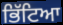
ਭਿੱਟਿਆ